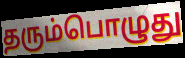
தரும்பொழுது